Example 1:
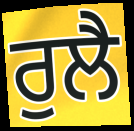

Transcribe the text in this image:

ਰੁਲੈ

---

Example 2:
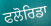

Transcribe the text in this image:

ਫਲੋਰਿਡਾ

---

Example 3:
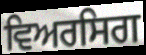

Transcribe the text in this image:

ਵਿਅਰਸਿਗ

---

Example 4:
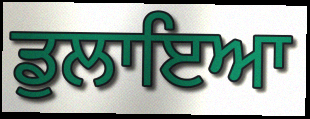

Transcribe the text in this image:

ਡੁਲਾਇਆ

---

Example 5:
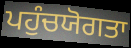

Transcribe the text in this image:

ਪਹੁੰਚਯੋਗਤਾ